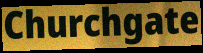
Churchgate